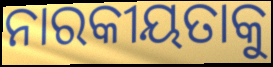
ନାରକୀୟତାକୁ